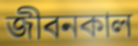
জীবনকাল